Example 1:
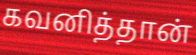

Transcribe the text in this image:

கவனித்தான்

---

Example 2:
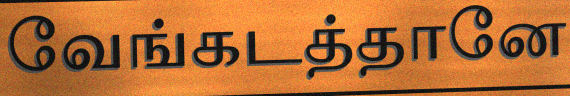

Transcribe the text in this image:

வேங்கடத்தானே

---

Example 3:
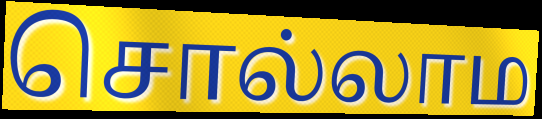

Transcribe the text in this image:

சொல்லாம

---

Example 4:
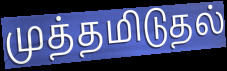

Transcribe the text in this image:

முத்தமிடுதல்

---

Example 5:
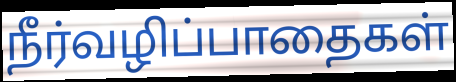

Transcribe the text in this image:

நீர்வழிப்பாதைகள்